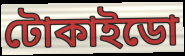
টোকাইডো